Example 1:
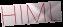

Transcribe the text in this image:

HIML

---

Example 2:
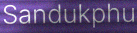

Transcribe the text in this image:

Sandukphu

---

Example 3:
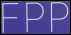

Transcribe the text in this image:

FPP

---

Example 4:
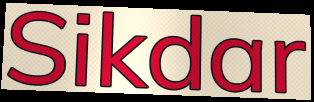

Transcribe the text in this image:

Sikdar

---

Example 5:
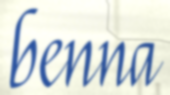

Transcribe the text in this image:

benna